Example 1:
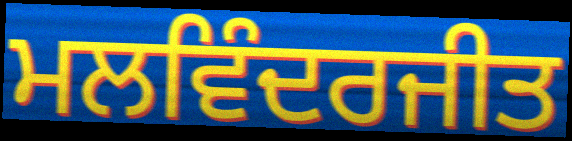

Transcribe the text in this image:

ਮਲਵਿੰਦਰਜੀਤ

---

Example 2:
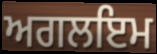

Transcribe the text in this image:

ਅਗਲਇਮ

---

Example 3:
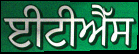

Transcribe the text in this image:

ਈਟੀਐੱਸ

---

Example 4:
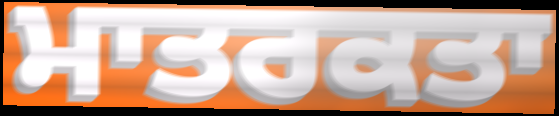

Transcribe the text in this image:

ਮਾਤਰਕਤਾ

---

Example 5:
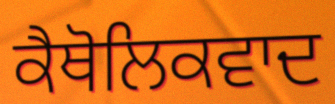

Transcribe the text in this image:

ਕੈਥੋਲਿਕਵਾਦ